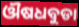
ଔଷଧବୁଡା